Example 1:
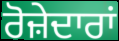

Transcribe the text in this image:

ਰੋਜ਼ੇਦਾਰਾਂ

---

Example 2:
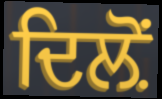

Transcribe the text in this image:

ਦਿਲ਼ੋਂ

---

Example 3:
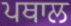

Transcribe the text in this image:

ਪਥਾਲ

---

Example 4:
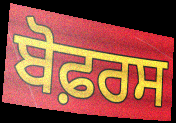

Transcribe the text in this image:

ਬੋਫ਼ਰਸ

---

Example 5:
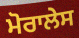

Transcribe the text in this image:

ਮੋਰਾਲੇਸ